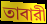
তাবারী